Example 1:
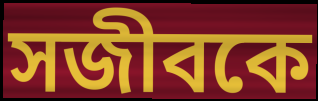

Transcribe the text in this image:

সজীবকে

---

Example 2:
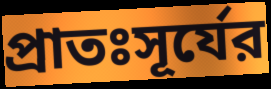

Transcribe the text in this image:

প্রাতঃসূর্যের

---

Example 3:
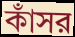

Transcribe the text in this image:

কাঁসর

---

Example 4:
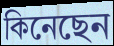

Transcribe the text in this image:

কিনেছেন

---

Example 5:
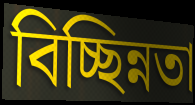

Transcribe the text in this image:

বিচ্ছিন্নতা